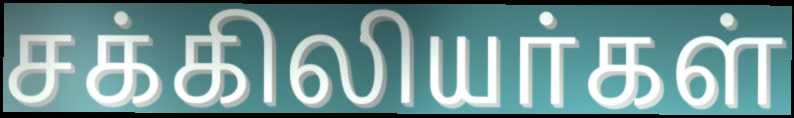
சக்கிலியர்கள்